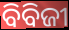
ବିବିଜୀ